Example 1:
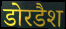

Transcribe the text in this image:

डोरडैश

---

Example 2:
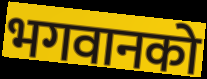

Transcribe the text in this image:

भगवानको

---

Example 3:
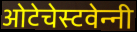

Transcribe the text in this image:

ओटेचेस्टवेन्नी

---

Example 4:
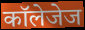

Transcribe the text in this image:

कॉलेजेज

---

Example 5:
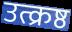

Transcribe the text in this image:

उत्क्रष्ठ